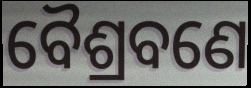
ବୈଶ୍ରବଣେ